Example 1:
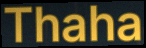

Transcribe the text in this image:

Thaha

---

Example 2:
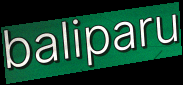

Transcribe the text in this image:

baliparu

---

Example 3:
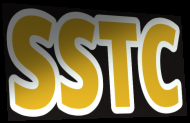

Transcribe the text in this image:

SSTC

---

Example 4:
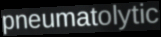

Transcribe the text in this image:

pneumatolytic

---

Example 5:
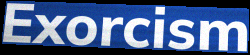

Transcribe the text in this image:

Exorcism